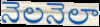
నెలనెలా